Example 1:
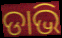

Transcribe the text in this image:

ଡାଭି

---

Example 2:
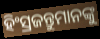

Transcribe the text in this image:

ହିଂସ୍ରଜନ୍ତୁମାନଙ୍କୁ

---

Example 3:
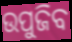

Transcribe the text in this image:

ଉପୁଜିବ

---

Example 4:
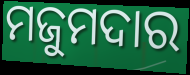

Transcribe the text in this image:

ମଜୁମଦାର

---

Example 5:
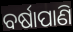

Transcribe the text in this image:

ବର୍ଷାପାଣି